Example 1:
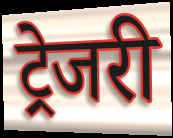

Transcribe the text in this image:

ट्रेजरी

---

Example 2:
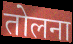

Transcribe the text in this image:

तोलना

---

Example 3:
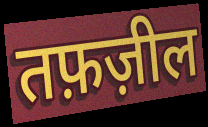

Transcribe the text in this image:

तफ़ज़ील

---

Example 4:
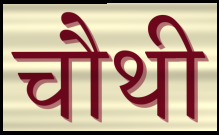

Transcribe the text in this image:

चौथी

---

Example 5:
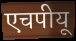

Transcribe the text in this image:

एचपीयू